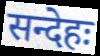
सन्देहः